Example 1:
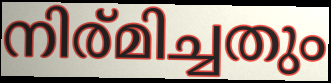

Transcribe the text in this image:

നിര്മിച്ചതും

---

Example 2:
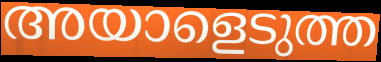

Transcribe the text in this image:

അയാളെടുത്ത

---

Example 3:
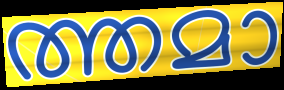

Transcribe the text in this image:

ത്തമാ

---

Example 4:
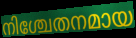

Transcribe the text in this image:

നിശ്ചേതനമായ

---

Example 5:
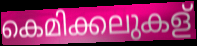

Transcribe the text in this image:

കെമിക്കലുകള്